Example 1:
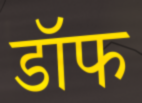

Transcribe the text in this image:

डॉफ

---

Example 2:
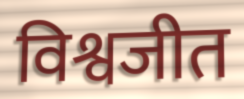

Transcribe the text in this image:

विश्वजीत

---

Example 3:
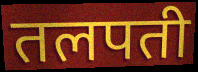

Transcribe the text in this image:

तलपती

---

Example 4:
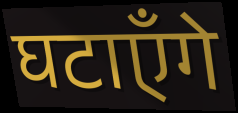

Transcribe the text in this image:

घटाएँगे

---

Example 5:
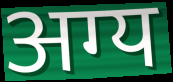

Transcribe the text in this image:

अग्य